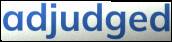
adjudged